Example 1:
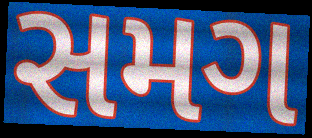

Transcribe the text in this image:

સમગ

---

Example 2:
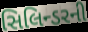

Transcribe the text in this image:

સિલિન્ડરની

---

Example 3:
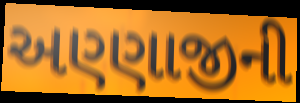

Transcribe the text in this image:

અણ્ણાજીની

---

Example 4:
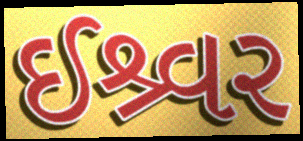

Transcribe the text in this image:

ઈશ્ર્વર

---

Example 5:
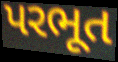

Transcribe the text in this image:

પરભૂત